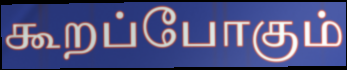
கூறப்போகும்